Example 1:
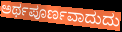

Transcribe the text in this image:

ಅರ್ಥಪೂರ್ಣವಾದುದು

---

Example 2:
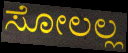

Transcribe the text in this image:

ಸೋಲಲ್ಲ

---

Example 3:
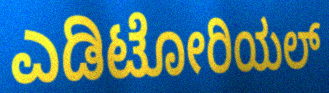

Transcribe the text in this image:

ಎಡಿಟೋರಿಯಲ್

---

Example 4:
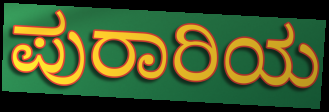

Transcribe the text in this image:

ಪುರಾರಿಯ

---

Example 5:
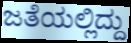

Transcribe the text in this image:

ಜತೆಯಲ್ಲಿದ್ದು